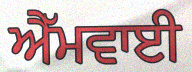
ਐੱਮਵਾਈ